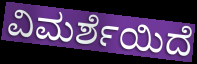
ವಿಮರ್ಶೆಯಿದೆ